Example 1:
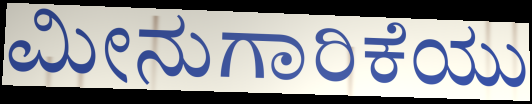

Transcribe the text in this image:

ಮೀನುಗಾರಿಕೆಯು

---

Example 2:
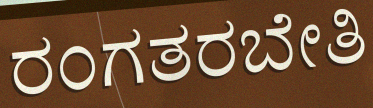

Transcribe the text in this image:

ರಂಗತರಬೇತಿ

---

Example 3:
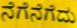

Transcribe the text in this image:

ನೆಗೆನೆಗೆದು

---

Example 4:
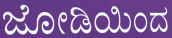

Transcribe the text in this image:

ಜೋಡಿಯಿಂದ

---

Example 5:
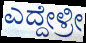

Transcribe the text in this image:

ಎದ್ದೇಳ್ರೀ